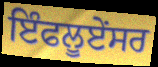
ਇੰਫਲੂਏਂਸਰ